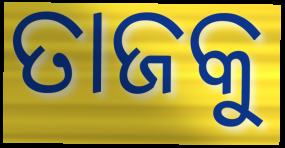
ତାଜକୁ